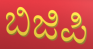
ಬಿಜಿಪಿ